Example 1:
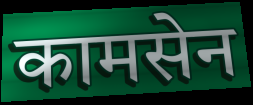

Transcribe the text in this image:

कामसेन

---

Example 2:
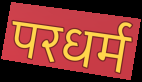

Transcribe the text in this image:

परधर्म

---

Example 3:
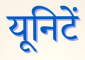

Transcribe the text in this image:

यूनिटें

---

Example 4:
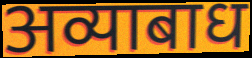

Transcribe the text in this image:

अव्याबाध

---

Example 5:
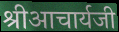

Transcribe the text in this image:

श्रीआचार्यजी